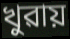
খুৱায়